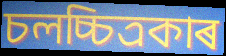
চলচ্চিত্ৰকাৰ